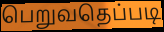
பெறுவதெப்படி